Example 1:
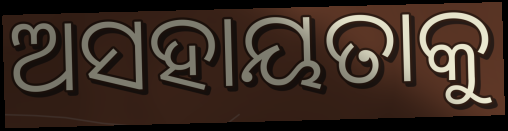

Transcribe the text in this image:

ଅସହାୟତାକୁ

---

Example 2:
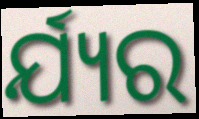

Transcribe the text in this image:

ର୍ଯ୍ୟର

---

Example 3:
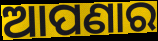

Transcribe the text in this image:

ଆପଣାର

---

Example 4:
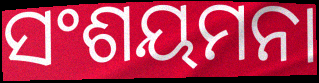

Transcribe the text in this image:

ସଂଶୟମନା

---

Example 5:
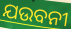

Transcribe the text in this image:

ଯଉବନୀ